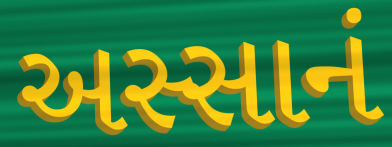
અસ્સાનં